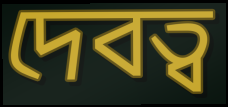
দেবত্ব